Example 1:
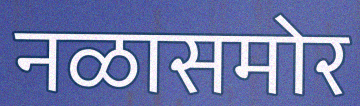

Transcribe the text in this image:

नळासमोर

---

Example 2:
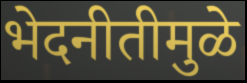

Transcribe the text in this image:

भेदनीतीमुळे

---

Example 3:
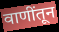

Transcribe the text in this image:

वाणींतून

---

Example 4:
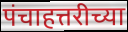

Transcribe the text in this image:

पंचाहत्तरीच्या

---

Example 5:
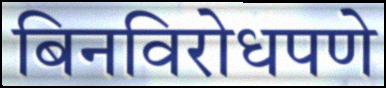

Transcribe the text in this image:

बिनविरोधपणे